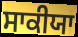
ਸਾਕੀਯਾ